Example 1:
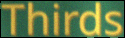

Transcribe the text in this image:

Thirds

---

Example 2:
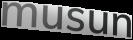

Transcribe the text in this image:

musun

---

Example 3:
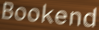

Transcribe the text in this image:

Bookend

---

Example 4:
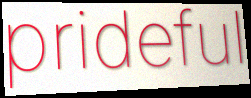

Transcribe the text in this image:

prideful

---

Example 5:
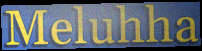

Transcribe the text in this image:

Meluhha